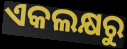
ଏକଲକ୍ଷରୁ